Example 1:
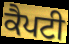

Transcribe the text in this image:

ਕੈਪਟੀ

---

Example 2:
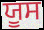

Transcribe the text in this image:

ਯੂਸ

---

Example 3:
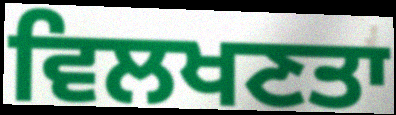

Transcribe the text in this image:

ਵਿਲਖਣਤਾ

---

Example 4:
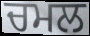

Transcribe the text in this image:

ਚਮਲ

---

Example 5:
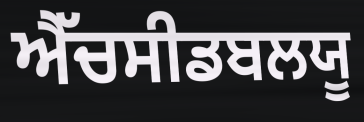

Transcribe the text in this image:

ਐੱਚਸੀਡਬਲਯੂ